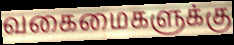
வகைமைகளுக்கு